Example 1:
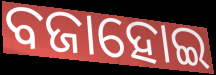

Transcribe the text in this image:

ବଜାହୋଇ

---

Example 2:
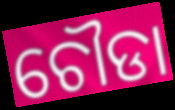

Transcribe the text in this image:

ଚୌଡା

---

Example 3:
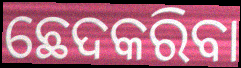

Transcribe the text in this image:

ଛେଦକରିବା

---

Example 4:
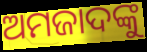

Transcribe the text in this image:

ଅମଜାଦଙ୍କୁ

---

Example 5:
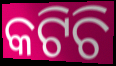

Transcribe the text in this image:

କଟିଚି